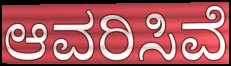
ಆವರಿಸಿವೆ